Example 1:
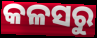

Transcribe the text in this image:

କଳସରୁ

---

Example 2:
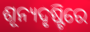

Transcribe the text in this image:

ଶୂନ୍ୟଦୃଷ୍ଟିରେ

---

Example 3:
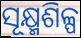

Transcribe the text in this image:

ସୂକ୍ଷ୍ମଶିଳ୍ପ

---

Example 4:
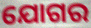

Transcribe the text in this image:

ଯୋଗର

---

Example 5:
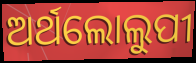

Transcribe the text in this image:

ଅର୍ଥଲୋଲୁପୀ